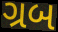
ગ્રબ